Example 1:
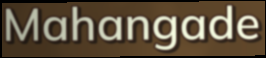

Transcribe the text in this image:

Mahangade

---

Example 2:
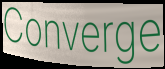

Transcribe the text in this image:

Converge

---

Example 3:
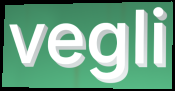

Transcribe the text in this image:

vegli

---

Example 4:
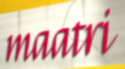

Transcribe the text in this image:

maatri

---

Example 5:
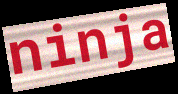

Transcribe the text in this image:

ninja